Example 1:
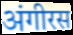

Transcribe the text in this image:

अंगीरस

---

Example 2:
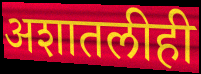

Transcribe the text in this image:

अशातलीही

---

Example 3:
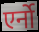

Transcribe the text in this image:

एर्नो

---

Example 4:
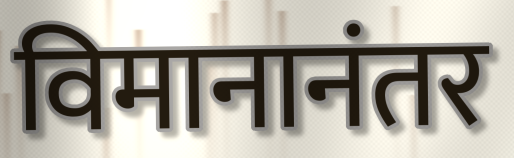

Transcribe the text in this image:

विमानानंतर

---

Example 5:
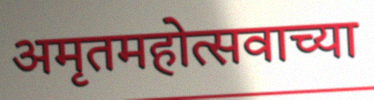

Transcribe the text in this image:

अमृतमहोत्सवाच्या